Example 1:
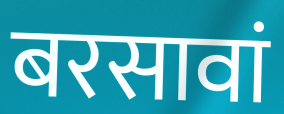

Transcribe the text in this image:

बरसावां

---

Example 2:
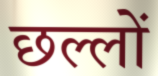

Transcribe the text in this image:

छल्लों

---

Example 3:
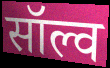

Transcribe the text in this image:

सॉल्व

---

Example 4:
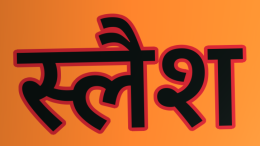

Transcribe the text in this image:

स्लैश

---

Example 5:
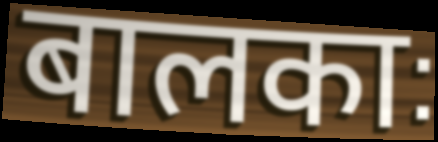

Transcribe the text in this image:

बालकाः